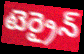
టెర్రైన్